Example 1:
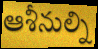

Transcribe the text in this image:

ఆశీనుల్ని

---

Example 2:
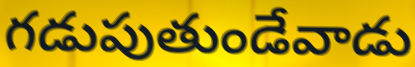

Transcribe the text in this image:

గడుపుతుండేవాడు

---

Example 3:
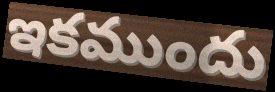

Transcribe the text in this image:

ఇకముందు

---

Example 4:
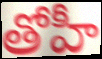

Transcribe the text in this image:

తోహీ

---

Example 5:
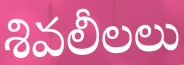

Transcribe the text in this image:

శివలీలలు